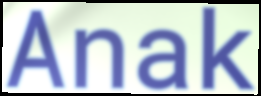
Anak